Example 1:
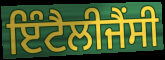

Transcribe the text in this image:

ਇੰਟੈਲੀਜੈਂਸੀ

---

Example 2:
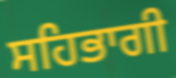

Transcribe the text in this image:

ਸਹਿਭਾਗੀ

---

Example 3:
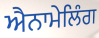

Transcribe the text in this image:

ਐਨਾਮੇਲਿੰਗ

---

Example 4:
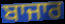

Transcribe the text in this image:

ਬਾਜਾਰ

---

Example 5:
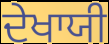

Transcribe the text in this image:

ਦੇਖਾਯੀ